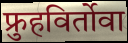
फ्रुहविर्तोवा